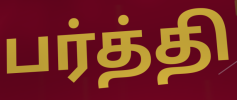
பர்த்தி